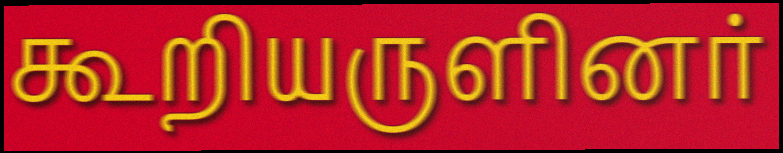
கூறியருளினர்